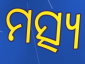
ମତ୍ସ୍ୟ